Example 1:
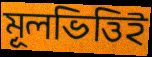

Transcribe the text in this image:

মূলভিত্তিই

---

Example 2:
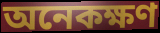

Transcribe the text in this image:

অনেকক্ষণ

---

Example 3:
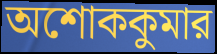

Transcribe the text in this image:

অশোককুমার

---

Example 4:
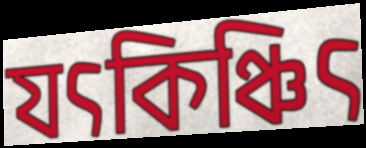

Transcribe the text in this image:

যৎকিঞ্চিৎ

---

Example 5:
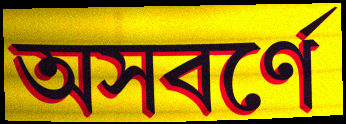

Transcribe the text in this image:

অসবর্ণে